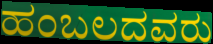
ಹಂಬಲದವರು